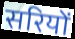
सरियों